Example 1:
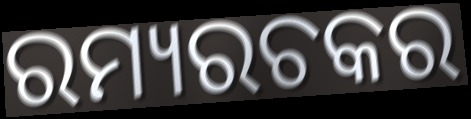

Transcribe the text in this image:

ରମ୍ୟରଚକର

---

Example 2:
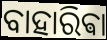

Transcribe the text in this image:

ବାହାରିଵା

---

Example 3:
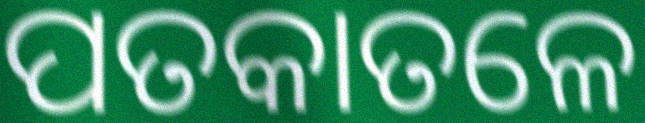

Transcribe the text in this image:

ପତକାତଳେ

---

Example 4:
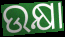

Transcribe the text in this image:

ଉକ୍ଷା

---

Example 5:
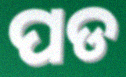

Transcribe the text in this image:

ପଡ